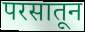
परसातून